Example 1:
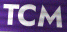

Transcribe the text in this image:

TCM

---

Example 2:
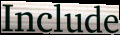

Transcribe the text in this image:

Include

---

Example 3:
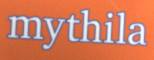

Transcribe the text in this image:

mythila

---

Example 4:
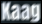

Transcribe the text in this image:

Kaag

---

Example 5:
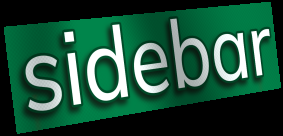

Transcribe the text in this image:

sidebar